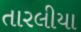
તારલીયા